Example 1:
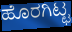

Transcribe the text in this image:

ಹೊರಗಿಟ್ಟ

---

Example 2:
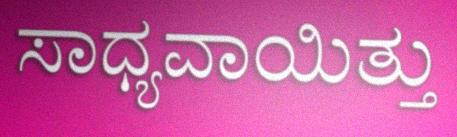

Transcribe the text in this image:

ಸಾಧ್ಯವಾಯಿತ್ತು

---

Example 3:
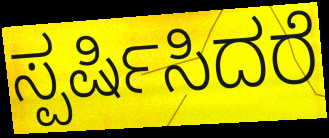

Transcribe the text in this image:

ಸ್ಪರ್ಷಿಸಿದರೆ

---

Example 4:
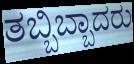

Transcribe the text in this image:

ತಬ್ಬಿಬ್ಬಾದರು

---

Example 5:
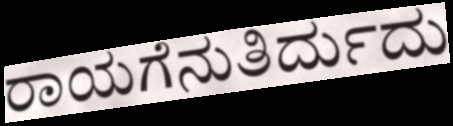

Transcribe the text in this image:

ರಾಯಗೆನುತಿರ್ದುದು